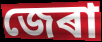
জেৰা